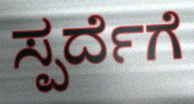
ಸ್ಪರ್ದೆಗೆ